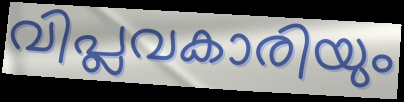
വിപ്ലവകാരിയും